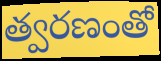
త్వరణంతో